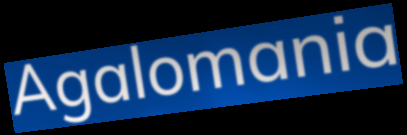
Agalomania